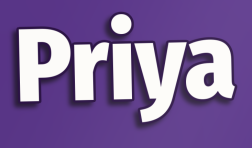
Priya